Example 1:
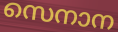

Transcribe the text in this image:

സെനാന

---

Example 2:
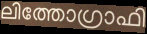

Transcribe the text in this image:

ലിത്തോഗ്രാഫി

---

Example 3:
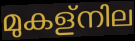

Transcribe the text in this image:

മുകള്നില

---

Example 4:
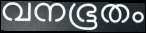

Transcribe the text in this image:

വനഭൂതം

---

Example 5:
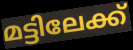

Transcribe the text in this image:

മട്ടിലേക്ക്